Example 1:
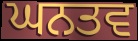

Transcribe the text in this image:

ਘਨਤਵ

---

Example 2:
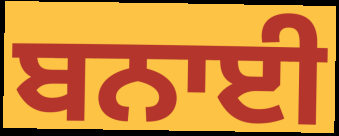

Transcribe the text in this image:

ਬਨਾਈ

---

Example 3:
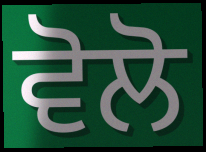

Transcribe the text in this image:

ਵੋਲੋ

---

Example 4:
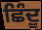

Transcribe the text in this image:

ਛਿੰਦੂ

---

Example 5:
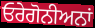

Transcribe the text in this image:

ਓਰੇਗੋਨੀਅਨਾਂ